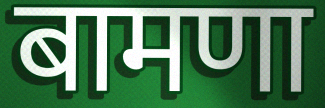
बामणा